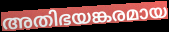
അതിഭയങ്കരമായ